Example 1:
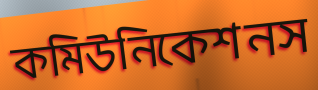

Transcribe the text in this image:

কমিউনিকেশনস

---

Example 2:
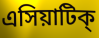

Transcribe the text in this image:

এসিয়াটিক্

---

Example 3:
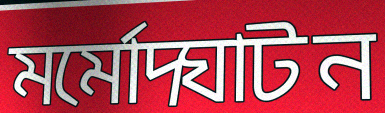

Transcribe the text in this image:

মর্মোদ্ঘাটন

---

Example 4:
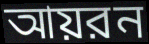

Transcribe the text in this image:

আয়রন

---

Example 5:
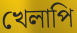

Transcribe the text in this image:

খেলাপি